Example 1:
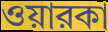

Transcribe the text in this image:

ওয়ারকা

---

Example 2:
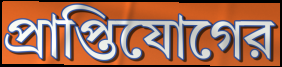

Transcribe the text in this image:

প্রাপ্তিযোগের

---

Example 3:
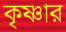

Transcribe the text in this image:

কৃষ্ণার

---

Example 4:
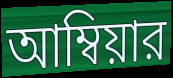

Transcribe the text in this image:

আম্বিয়ার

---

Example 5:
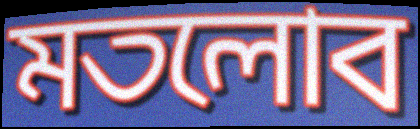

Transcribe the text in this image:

মতলোব